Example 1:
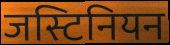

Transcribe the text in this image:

जस्टिनियन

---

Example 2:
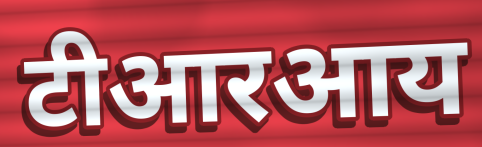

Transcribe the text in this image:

टीआरआय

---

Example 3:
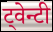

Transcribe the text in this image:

ट्वेन्टी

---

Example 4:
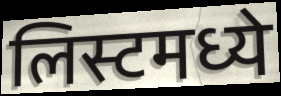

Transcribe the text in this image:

लिस्टमध्ये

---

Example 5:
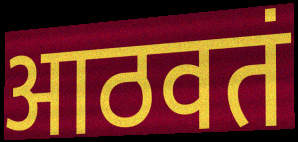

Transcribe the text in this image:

आठवतं